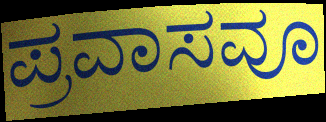
ಪ್ರವಾಸವೂ